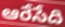
ఆరేసేది